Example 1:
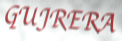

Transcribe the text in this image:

GUJRERA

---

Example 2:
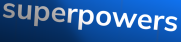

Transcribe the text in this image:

superpowers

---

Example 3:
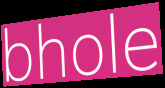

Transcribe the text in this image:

bhole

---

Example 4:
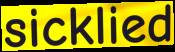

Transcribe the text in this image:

sicklied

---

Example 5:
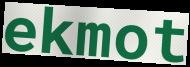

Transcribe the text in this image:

ekmot